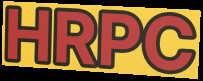
HRPC